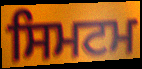
ਸਿਮਟਮ